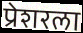
प्रेशरला